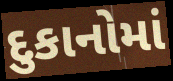
દુકાનોમાં